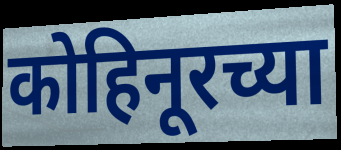
कोहिनूरच्या